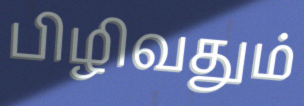
பிழிவதும்